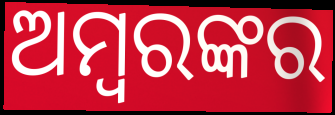
ଅମ୍ବରଙ୍କର